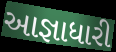
આજ્ઞાધારી